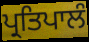
ਪ੍ਰਤਿਪਾਲੰ